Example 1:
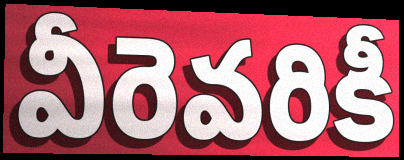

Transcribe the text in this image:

వీరెవరికీ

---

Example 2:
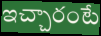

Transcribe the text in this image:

ఇచ్చారంటే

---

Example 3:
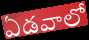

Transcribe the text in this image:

ఏడవాలో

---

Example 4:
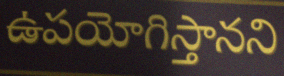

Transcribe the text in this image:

ఉపయోగిస్తానని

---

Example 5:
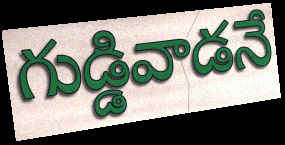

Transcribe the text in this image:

గుడ్డివాడనే